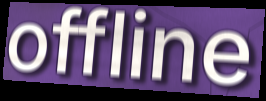
offline